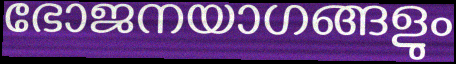
ഭോജനയാഗങ്ങളും